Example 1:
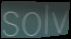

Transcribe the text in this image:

solv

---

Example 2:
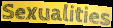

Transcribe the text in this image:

Sexualities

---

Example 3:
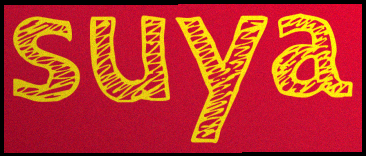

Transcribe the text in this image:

suya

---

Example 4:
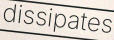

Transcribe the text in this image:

dissipates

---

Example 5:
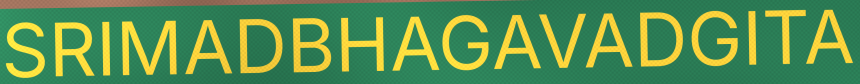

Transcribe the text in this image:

SRIMADBHAGAVADGITA